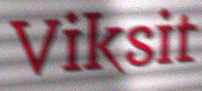
Viksit